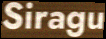
Siragu